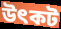
উৎকট